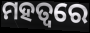
ମହତ୍ୱରେ